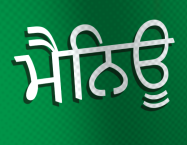
ਮੈਨਿਊ